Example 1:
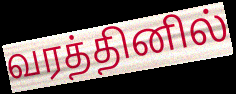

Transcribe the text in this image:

வரத்தினில்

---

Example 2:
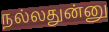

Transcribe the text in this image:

நல்லதுன்னு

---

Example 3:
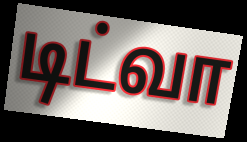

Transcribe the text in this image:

டிட்வா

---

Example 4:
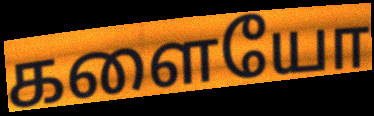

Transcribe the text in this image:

களையோ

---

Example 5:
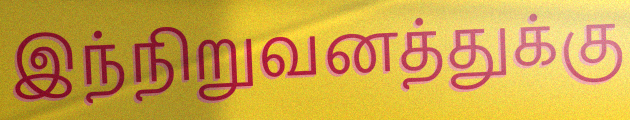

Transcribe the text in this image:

இந்நிறுவனத்துக்கு